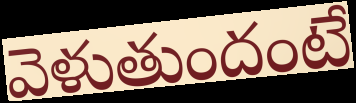
వెళుతుందంటే